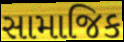
સામાજિક